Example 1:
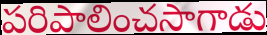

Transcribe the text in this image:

పరిపాలించసాగాడు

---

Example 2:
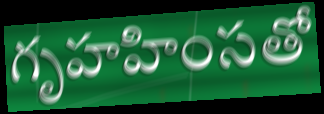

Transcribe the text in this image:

గృహహింసతో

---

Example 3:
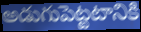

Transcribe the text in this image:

అడుగుపెట్టటానికి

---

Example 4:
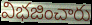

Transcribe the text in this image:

విభజించారు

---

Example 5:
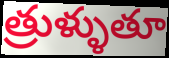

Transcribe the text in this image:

త్రుళ్ళుతూ